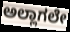
ಅಲ್ಲಾಗಲೇ